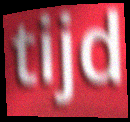
tijd